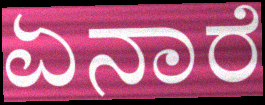
ಏನಾರೆ